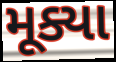
મૂક્યા